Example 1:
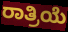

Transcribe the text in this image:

ರಾತ್ರಿಯೆ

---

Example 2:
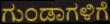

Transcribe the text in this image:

ಗುಂಡಾಗಳಿಗೆ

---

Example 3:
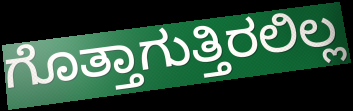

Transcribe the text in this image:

ಗೊತ್ತಾಗುತ್ತಿರಲಿಲ್ಲ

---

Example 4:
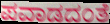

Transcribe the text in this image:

ಪವಾಡದಂತೆ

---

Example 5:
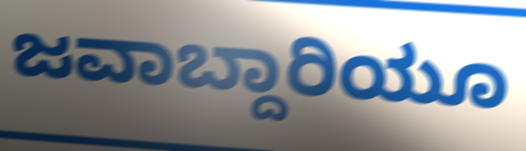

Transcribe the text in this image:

ಜವಾಬ್ದಾರಿಯೂ